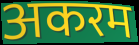
अकरम